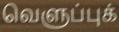
வெளுப்புக்